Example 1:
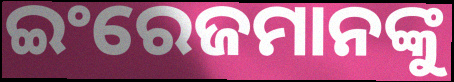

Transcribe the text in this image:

ଇଂରେଜମାନଙ୍କୁ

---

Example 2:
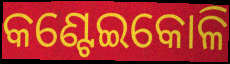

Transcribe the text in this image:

କଣ୍ଟେଇକୋଳି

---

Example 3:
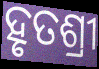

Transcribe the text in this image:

ହୃତଶ୍ରୀ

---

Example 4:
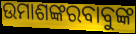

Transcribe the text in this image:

ଉମାଶଙ୍କରବାବୁଙ୍କ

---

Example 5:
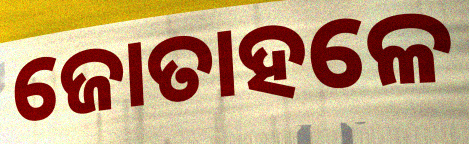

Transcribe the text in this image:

ଜୋତାହଳେ